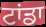
ਟਾਂਡਾ